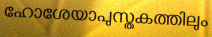
ഹോശേയാപുസ്തകത്തിലും